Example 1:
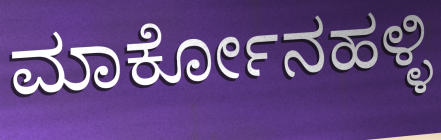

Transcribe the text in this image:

ಮಾರ್ಕೋನಹಳ್ಳಿ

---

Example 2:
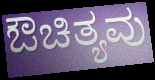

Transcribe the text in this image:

ಔಚಿತ್ಯವು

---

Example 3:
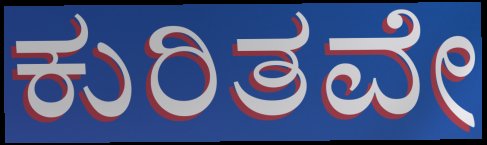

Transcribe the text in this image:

ಕುರಿತವೇ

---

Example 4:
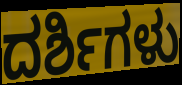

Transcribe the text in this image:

ದರ್ಶಿಗಳು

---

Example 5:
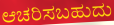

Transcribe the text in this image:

ಆಚರಿಸಬಹುದು